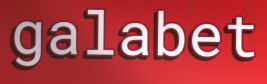
galabet